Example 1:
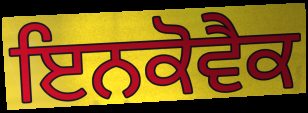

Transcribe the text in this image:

ਇਨਕੋਵੈਕ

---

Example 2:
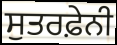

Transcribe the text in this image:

ਸੁਤਰਫ਼ੇਨੀ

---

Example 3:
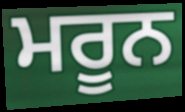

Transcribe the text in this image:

ਮਰੂਨ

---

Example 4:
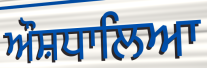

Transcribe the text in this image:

ਔਸ਼ਧਾਲਿਆ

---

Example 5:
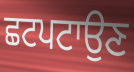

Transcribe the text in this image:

ਛਟਪਟਾਉਣ